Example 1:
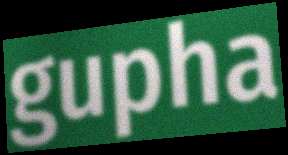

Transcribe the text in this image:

gupha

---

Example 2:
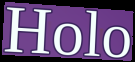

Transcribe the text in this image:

Holo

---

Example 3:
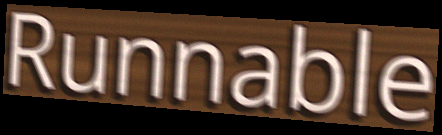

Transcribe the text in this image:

Runnable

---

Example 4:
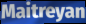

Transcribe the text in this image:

Maitreyan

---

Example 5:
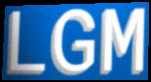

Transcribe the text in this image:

LGM